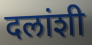
दलांशी